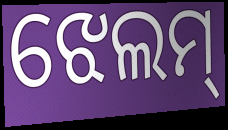
ଝେଲମ୍